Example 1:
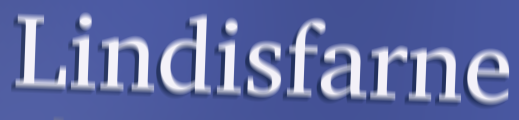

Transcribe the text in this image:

Lindisfarne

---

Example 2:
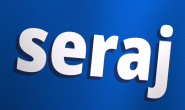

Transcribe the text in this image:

seraj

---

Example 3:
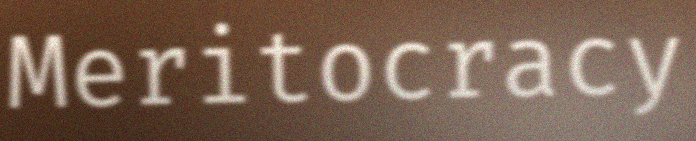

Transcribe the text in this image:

Meritocracy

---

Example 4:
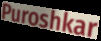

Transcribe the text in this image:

Puroshkar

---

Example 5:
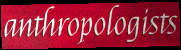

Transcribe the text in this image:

anthropologists